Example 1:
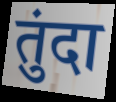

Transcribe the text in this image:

तुंदा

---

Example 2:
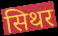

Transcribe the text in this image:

सिथर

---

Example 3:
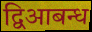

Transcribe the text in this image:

द्विआबन्ध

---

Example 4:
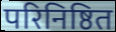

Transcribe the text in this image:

परिनिष्ठित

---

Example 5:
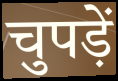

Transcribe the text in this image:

चुपड़ें